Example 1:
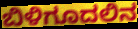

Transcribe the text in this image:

ಬಿಳಿಗೂದಲಿನ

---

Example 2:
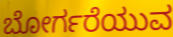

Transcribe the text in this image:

ಬೋರ್ಗರೆಯುವ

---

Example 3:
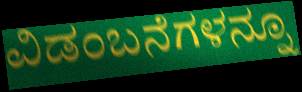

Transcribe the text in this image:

ವಿಡಂಬನೆಗಳನ್ನೂ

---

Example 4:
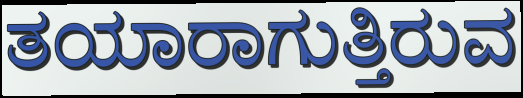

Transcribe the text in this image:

ತಯಾರಾಗುತ್ತಿರುವ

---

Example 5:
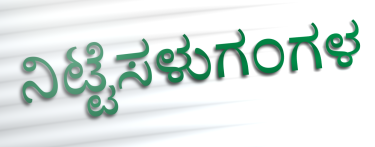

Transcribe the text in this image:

ನಿಟ್ಟೆಸಳುಗಂಗಳ